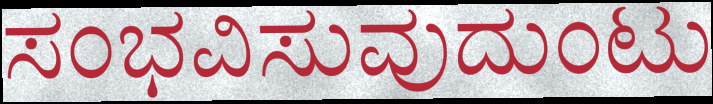
ಸಂಭವಿಸುವುದುಂಟು